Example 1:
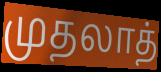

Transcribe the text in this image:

முதலாத்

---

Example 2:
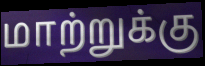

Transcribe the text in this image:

மாற்றுக்கு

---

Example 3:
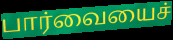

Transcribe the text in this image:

பார்வையைச்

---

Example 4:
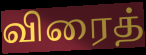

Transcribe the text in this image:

விரைத்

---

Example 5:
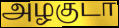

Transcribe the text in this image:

அழகுடா